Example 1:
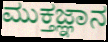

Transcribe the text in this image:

ಮುಕ್ತಜ್ಞಾನ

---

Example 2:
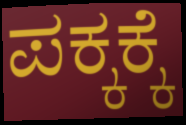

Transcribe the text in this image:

ಪಕ್ಕಕ್ಕೆ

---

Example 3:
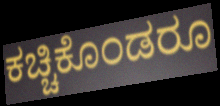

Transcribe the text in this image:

ಕಚ್ಚಿಕೊಂಡರೂ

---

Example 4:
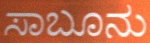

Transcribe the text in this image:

ಸಾಬೂನು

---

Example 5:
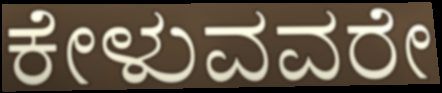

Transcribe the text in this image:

ಕೇಳುವವರೇ